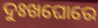
ଦୁଃଖଘୋରେ